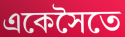
একেসৈতে